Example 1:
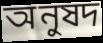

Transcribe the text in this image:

অনুষদ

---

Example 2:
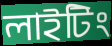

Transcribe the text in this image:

লাইটিং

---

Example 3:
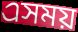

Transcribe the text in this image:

এসময়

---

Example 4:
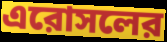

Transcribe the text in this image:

এরোসলের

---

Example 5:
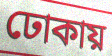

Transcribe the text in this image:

ঢোকায়